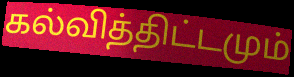
கல்வித்திட்டமும்